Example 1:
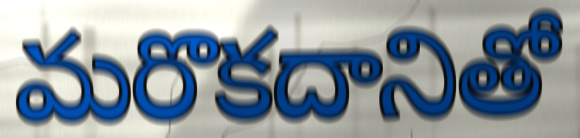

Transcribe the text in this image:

మరొకదానితో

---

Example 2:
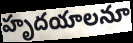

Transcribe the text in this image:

హృదయాలనూ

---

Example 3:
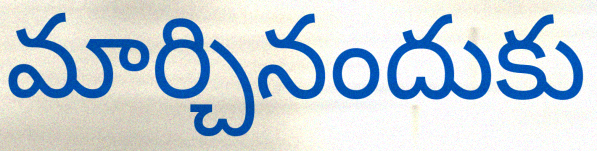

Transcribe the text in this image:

మార్చినందుకు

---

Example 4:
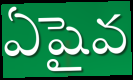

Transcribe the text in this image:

ఏషైవ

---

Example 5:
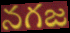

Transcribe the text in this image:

నగజ